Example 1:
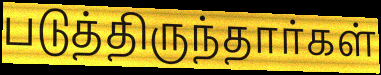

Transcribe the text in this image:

படுத்திருந்தார்கள்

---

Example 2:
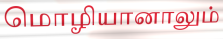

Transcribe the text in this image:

மொழியானாலும்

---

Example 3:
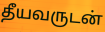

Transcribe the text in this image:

தீயவருடன்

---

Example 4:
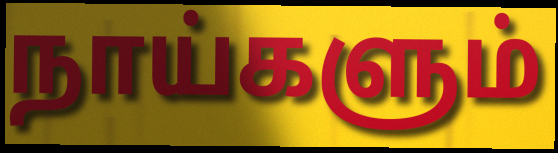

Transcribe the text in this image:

நாய்களும்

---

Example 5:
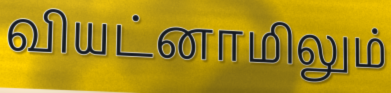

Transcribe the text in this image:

வியட்னாமிலும்